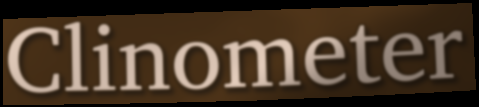
Clinometer